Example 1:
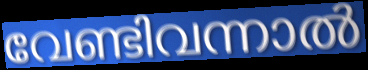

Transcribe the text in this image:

വേണ്ടിവന്നാൽ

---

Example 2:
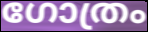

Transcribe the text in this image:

ഗോത്രം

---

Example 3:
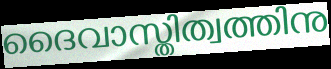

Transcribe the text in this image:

ദൈവാസ്തിത്വത്തിനു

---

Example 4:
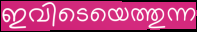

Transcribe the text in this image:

ഇവിടെയെത്തുന്ന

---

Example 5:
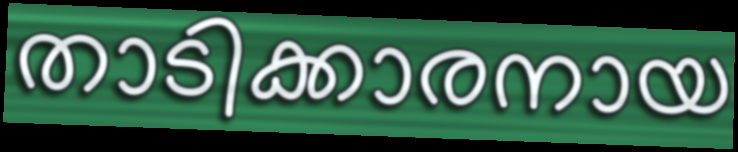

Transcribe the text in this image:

താടിക്കാരനായ